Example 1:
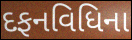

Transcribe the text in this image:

દફનવિધિના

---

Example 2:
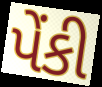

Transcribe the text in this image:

પેંકી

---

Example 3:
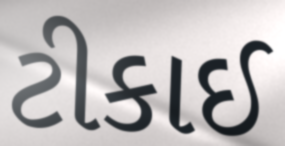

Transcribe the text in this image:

ટીકાઈ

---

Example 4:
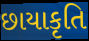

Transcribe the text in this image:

છાયાકૃતિ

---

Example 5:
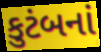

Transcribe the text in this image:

કુટંબનાં